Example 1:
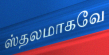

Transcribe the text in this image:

ஸ்தலமாகவே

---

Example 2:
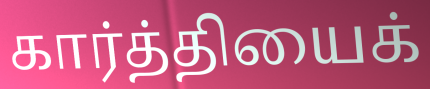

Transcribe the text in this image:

கார்த்தியைக்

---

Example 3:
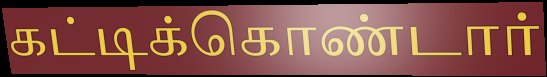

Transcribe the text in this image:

கட்டிக்கொண்டார்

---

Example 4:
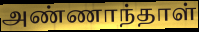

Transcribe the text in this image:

அண்ணாந்தாள்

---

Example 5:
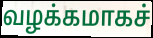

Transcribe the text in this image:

வழக்கமாகச்